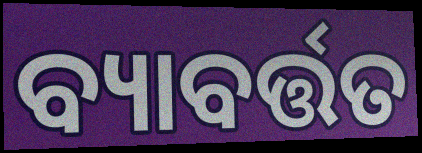
ବ୍ୟାବର୍ତ୍ତତ